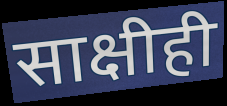
साक्षीही